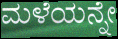
ಮಳೆಯನ್ನೇ